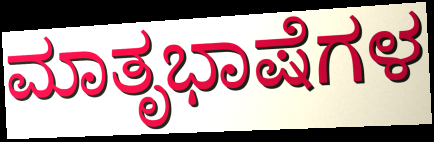
ಮಾತೃಭಾಷೆಗಳ